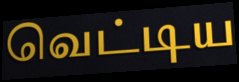
வெட்டிய